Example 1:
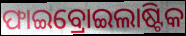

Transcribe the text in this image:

ଫାଇବ୍ରୋଇଲାଷ୍ଟିକ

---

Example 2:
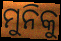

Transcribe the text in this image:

ମୁନିକୁ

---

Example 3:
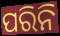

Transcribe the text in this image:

ପରିନି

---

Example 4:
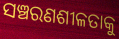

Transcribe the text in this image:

ସଞ୍ଚରଣଶୀଳତାକୁ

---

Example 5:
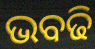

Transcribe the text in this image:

ଭବଢି